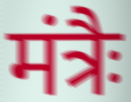
मंत्रैः